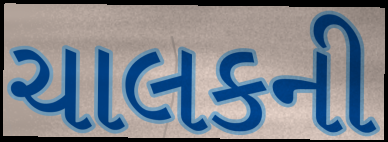
ચાલકની